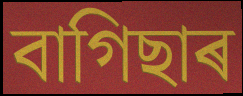
বাগিছাৰ